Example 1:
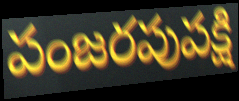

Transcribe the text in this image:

పంజరపుపక్షి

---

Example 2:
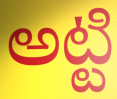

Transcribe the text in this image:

అట్టి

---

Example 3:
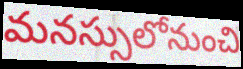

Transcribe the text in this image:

మనస్సులోనుంచి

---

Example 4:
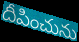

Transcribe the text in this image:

దీపించును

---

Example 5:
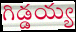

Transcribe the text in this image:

గిడ్డయ్య